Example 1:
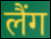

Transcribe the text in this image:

लैंग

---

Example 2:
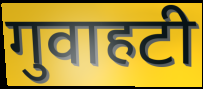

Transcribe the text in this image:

गुवाहटी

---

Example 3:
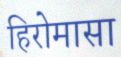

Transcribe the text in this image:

हिरोमासा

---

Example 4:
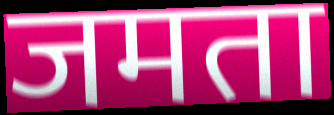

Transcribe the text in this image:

जमता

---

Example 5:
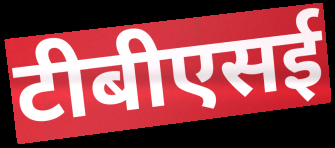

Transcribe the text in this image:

टीबीएसई